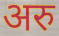
अरु